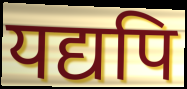
यद्यपि